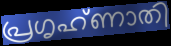
പ്രഗൃഹ്ണാതി